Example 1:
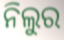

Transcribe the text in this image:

ନିଲୁର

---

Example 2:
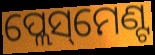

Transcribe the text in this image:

ପ୍ଲେସ୍‌ମେଣ୍ଟ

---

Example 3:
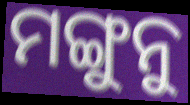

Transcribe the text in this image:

ମଙ୍ଗୁନୁ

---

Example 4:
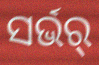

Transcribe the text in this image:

ସର୍ଭର୍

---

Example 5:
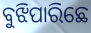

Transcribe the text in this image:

ବୁଝିପାରିଛେ